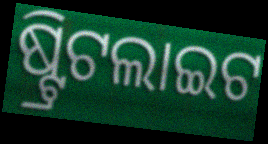
ଷ୍ଟ୍ରିଟଲାଇଟ